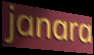
janara